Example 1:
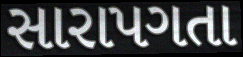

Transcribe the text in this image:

સારાપગતા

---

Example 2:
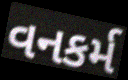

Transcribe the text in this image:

વનકર્મ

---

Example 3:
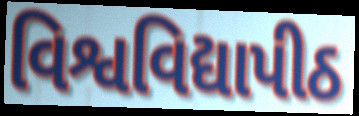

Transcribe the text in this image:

વિશ્વવિદ્યાપીઠ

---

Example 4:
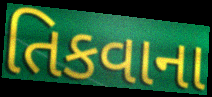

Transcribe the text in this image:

તિકવાના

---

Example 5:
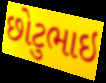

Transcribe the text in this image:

છોટુભાઇ